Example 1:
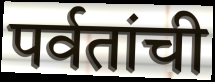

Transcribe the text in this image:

पर्वतांची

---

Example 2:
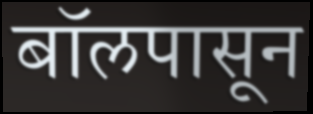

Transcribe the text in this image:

बॉलपासून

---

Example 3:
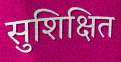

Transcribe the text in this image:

सुशिक्षित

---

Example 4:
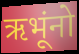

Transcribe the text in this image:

ऋभूंनो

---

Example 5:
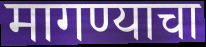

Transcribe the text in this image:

मागण्याचा